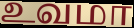
உவமா